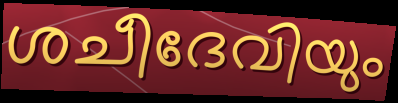
ശചീദേവിയും